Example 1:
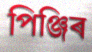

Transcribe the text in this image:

পিঞ্জিৰ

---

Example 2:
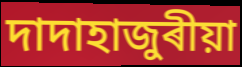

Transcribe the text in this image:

দাদাহাজুৰীয়া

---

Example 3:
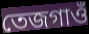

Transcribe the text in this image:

তেজগাওঁ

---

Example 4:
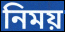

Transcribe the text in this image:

নিময়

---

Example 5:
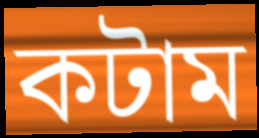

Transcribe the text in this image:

কটাম